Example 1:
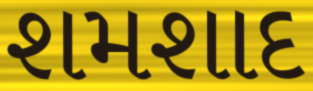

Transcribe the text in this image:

શમશાદ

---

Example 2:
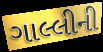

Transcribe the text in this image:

ગાલ્લીની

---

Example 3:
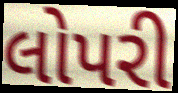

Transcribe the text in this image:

લોપરી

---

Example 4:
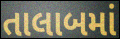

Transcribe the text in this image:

તાલાબમાં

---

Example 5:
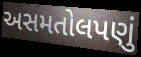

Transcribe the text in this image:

અસમતોલપણું